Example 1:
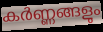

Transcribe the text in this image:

കർണ്ണങ്ങളും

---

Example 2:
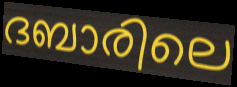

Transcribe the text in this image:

ദബാരിലെ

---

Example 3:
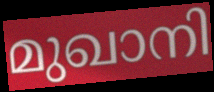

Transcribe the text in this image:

മുഖാനി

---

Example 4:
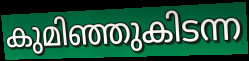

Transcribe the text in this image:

കുമിഞ്ഞുകിടന്ന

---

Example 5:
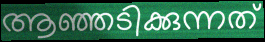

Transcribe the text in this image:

ആഞ്ഞടിക്കുന്നത്